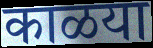
काळया